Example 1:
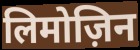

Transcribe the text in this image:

लिमोज़िन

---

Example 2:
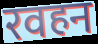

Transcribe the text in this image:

रवहन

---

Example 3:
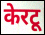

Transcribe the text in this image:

केरटू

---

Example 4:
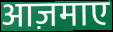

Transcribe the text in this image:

आज़माए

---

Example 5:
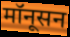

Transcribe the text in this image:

मॉनूसन